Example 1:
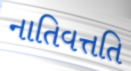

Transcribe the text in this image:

નાતિવત્તતિ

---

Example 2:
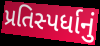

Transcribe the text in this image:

પ્રતિસ્પર્ધાનું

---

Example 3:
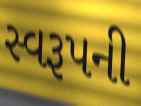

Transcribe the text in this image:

સ્વરૂપની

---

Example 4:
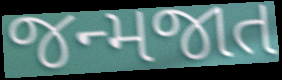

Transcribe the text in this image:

જન્મજાત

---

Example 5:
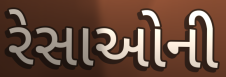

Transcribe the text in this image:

રેસાઓની